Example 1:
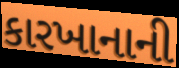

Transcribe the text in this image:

કારખાનાની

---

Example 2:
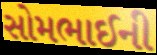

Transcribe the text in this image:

સોમભાઈની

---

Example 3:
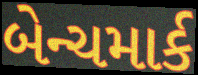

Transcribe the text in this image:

બેન્ચમાર્ક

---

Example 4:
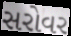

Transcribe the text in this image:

સરોવર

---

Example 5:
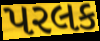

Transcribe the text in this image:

પરલક